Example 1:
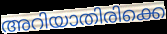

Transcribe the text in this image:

അറിയാതിരിക്കെ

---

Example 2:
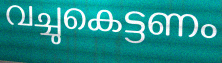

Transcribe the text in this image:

വച്ചുകെട്ടണം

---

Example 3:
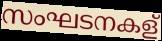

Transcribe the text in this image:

സംഘടനകള്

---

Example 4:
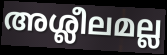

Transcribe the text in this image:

അശ്ലീലമല്ല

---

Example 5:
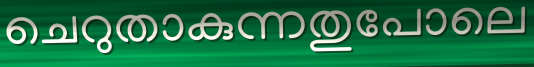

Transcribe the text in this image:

ചെറുതാകുന്നതുപോലെ